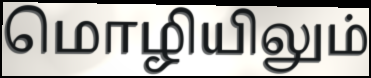
மொழியிலும்